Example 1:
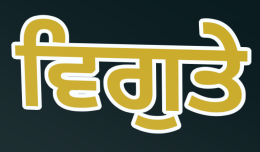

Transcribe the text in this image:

ਵਿਗੁਤੇ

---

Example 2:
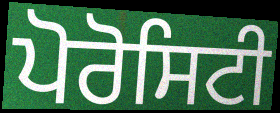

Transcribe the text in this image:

ਪੋਰੋਸਿਟੀ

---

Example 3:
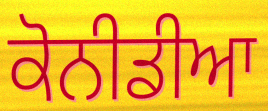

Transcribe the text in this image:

ਕੋਨੀਡੀਆ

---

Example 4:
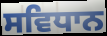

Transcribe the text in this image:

ਸਵਿਧਾਨ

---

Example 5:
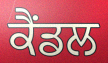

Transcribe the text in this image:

ਕੈਂਡਲ